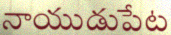
నాయుడుపేట